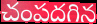
చంపదగిన